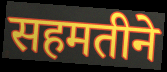
सहमतीने